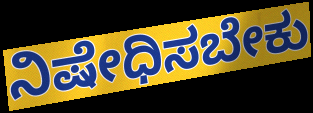
ನಿಷೇಧಿಸಬೇಕು